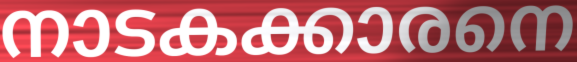
നാടകക്കാരനെ